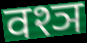
वश्ञ